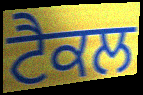
ਟੈਕਲ